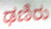
ಢಣಿರು